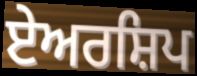
ਏਅਰਸ਼ਿਪ